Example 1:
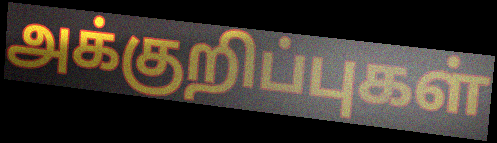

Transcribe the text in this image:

அக்குறிப்புகள்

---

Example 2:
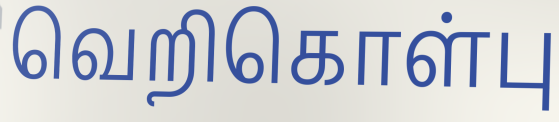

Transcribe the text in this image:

வெறிகொள்பு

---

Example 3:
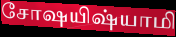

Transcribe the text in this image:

சோஷயிஷ்யாமி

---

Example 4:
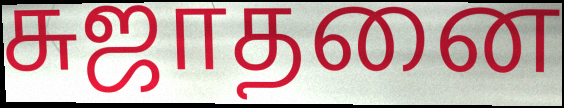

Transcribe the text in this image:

சுஜாதனை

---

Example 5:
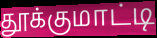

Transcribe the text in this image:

தூக்குமாட்டி